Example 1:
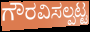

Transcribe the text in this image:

ಗೌರವಿಸಲ್ಪಟ್ಟ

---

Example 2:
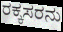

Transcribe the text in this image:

ರಕ್ಕಸರನು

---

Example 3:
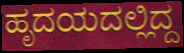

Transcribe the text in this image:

ಹೃದಯದಲ್ಲಿದ್ದ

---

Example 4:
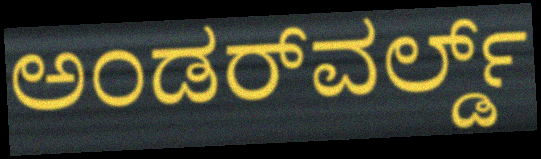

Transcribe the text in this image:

ಅಂಡರ್‌ವರ್ಲ್ಡ್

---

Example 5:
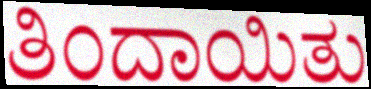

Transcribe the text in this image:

ತಿಂದಾಯಿತು